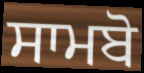
ਸਾਮਬੋ